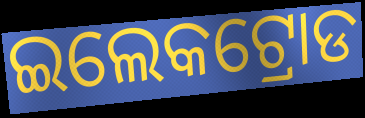
ଇଲେକଟ୍ରୋଡ